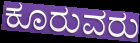
ಕೂರುವರು